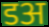
डअ